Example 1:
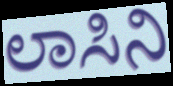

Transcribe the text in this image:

ಲಾಸಿನಿ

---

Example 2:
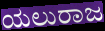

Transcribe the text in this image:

ಯಲುರಾಜ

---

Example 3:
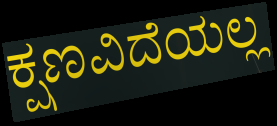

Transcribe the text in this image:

ಕ್ಷಣವಿದೆಯಲ್ಲ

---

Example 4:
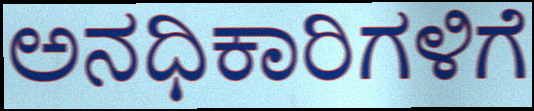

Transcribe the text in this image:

ಅನಧಿಕಾರಿಗಳಿಗೆ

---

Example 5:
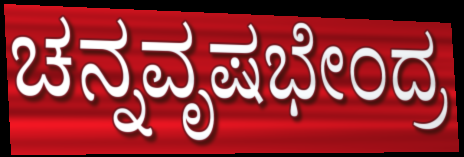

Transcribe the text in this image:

ಚನ್ನವೃಷಭೇಂದ್ರ